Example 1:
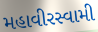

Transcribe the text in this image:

મહાવીરસ્વામી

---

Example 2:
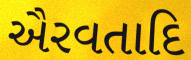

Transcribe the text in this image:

ઐરવતાદિ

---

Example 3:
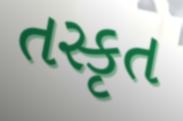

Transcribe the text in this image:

તસ્કૃત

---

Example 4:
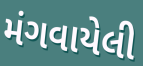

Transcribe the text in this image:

મંગવાયેલી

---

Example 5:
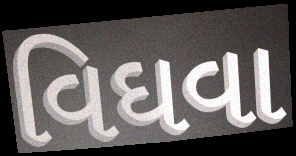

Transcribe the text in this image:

વિઘવા